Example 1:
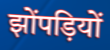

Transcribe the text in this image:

झोंपड़ियों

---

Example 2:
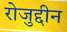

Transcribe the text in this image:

रोजुद्दीन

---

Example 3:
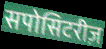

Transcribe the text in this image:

सपोसिटरीज़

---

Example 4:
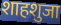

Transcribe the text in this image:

शाहशुजा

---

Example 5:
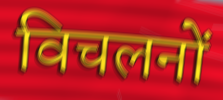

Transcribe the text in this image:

विचलनों